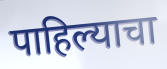
पाहिल्याचा